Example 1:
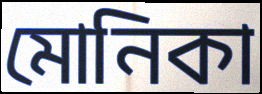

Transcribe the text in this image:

মোনিকা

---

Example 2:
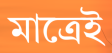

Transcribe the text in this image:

মাত্রেই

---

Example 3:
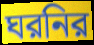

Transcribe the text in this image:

ঘরনির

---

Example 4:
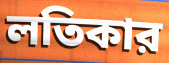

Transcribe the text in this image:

লতিকার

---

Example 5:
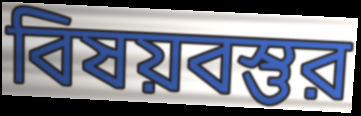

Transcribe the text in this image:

বিষয়বস্তুর